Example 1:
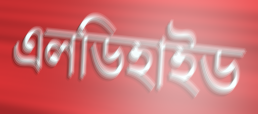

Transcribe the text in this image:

এলডিহাইড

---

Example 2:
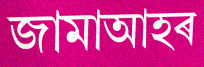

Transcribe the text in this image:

জামাআহৰ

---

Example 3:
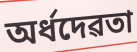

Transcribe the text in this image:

অৰ্ধদেৱতা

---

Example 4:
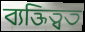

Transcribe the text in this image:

ব্যক্তিত্বত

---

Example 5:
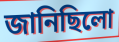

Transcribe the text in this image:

জানিছিলো